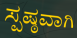
ಸ್ಪಷ್ಠವಾಗಿ